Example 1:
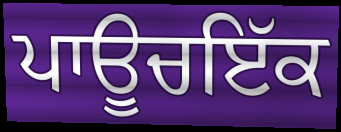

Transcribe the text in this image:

ਪਾਊਚਇੱਕ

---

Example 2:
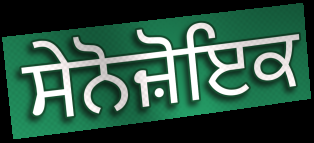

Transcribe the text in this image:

ਸੇਨੋਜ਼ੋਇਕ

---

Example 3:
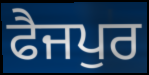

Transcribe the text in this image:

ਫੈਜਪੁਰ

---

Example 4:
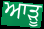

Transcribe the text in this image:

ਆੜੂ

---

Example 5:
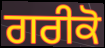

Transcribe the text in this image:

ਗਰੀਕੋ